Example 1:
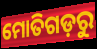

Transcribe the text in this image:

ମୋତିଗଡ଼ରୁ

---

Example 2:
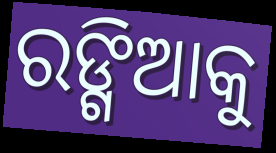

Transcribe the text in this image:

ରଙ୍ଗିଆକୁ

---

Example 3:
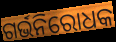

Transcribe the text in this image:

ଗର୍ଭନିରୋଧକ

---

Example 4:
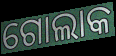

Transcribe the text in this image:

ଗୋଲାକ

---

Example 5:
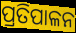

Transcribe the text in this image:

ପ୍ରତିପାଳନ